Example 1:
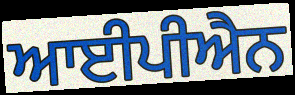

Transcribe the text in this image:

ਆਈਪੀਐਨ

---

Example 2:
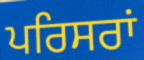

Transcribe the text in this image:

ਪਰਿਸਰਾਂ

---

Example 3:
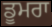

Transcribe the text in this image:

ਡੂਮਰਾ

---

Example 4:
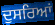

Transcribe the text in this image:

ਦੁਸਰਿਆਂ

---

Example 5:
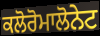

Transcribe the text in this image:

ਕਲੋਰੋਮਾਲੋਨੇਟ